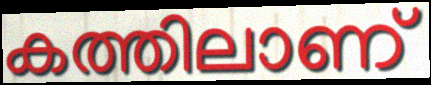
കത്തിലാണ്